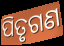
ପିତୃଗଣ